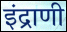
इंद्राणी